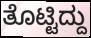
ತೊಟ್ಟಿದ್ದು